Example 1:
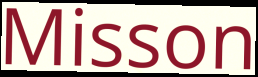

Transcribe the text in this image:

Misson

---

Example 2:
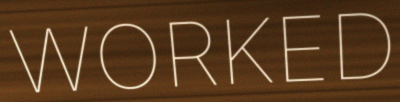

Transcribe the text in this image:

WORKED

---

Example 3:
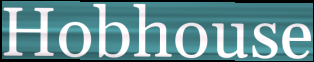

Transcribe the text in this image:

Hobhouse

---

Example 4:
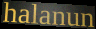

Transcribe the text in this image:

halanun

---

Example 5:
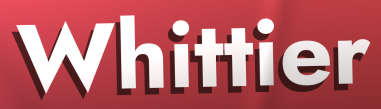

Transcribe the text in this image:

Whittier